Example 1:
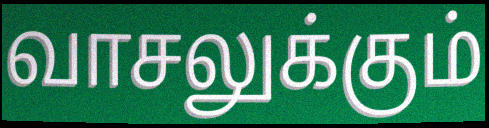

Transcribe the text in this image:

வாசலுக்கும்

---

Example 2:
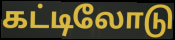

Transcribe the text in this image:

கட்டிலோடு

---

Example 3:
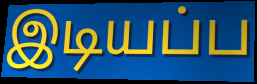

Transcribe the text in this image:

இடியப்ப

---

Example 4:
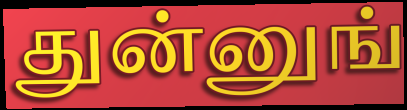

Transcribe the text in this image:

துன்னுங்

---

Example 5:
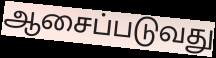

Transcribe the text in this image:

ஆசைப்படுவது